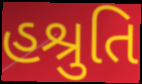
હશ્રુતિ